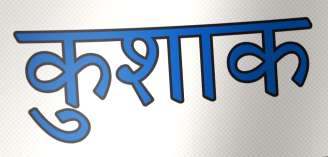
कुशाक